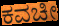
ಕವಚೀ